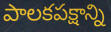
పాలకపక్షాన్ని